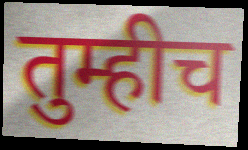
तुम्हीच